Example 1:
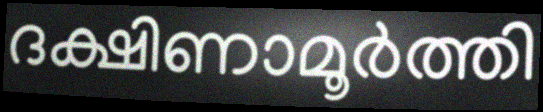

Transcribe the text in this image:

ദക്ഷിണാമൂർത്തി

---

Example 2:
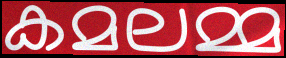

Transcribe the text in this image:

കമലമ്മ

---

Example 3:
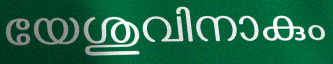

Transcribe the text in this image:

യേശുവിനാകും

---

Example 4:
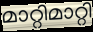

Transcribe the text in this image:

മാറ്റിമാറ്റി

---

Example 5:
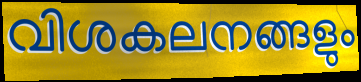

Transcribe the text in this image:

വിശകലനങ്ങളും